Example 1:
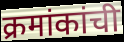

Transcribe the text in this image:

क्रमांकांची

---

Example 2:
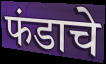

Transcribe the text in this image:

फंडाचे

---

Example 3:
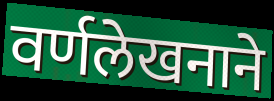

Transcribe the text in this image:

वर्णलेखनाने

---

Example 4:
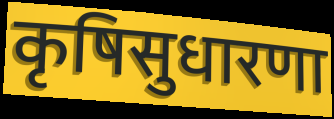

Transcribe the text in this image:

कृषिसुधारणा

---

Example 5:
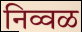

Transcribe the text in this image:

निव्‍वळ